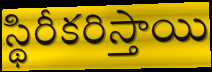
స్థిరీకరిస్తాయి